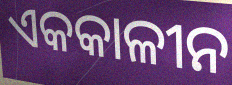
ଏକକାଳୀନ